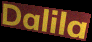
Dalila